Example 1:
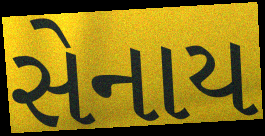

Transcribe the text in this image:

સેનાય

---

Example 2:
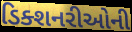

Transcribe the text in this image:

ડિક્શનરીઓની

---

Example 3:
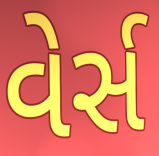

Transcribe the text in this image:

વેર્સ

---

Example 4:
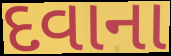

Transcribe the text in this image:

દવાના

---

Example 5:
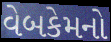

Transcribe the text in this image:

વેબકેમનો